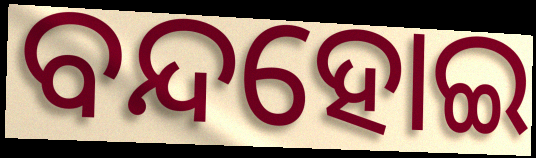
ବନ୍ଦହୋଇ